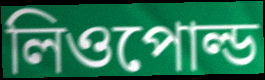
লিওপোল্ড